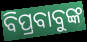
ବିପ୍ରବାବୁଙ୍କ